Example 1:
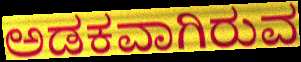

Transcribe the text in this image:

ಅಡಕವಾಗಿರುವ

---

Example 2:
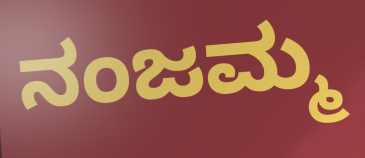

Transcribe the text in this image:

ನಂಜಮ್ಮ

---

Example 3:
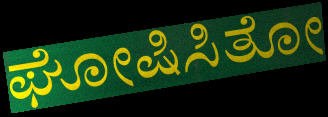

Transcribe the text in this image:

ಘೋಷಿಸಿತೋ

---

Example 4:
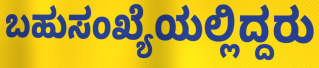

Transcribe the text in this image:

ಬಹುಸಂಖ್ಯೆಯಲ್ಲಿದ್ದರು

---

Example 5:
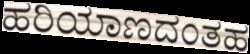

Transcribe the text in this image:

ಹರಿಯಾಣದಂತಹ